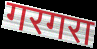
गरगरा